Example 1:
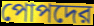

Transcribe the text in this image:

পোপদের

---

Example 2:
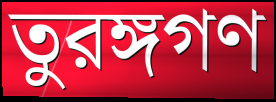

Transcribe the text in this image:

তুরঙ্গগণ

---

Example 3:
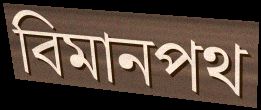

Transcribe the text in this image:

বিমানপথ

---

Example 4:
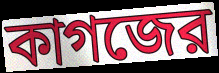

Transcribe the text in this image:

কাগজের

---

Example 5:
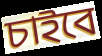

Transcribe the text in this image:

চাইবে